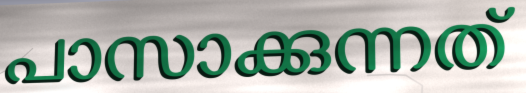
പാസാക്കുന്നത്